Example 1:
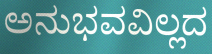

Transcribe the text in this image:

ಅನುಭವವಿಲ್ಲದ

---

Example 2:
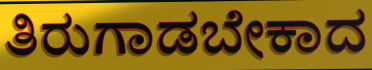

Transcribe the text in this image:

ತಿರುಗಾಡಬೇಕಾದ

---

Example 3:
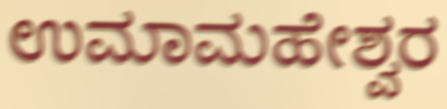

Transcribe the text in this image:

ಉಮಾಮಹೇಶ್ವರ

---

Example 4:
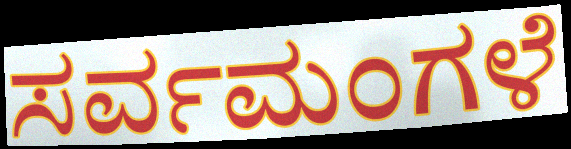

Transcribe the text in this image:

ಸರ್ವಮಂಗಳೆ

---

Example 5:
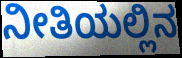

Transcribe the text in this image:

ನೀತಿಯಲ್ಲಿನ